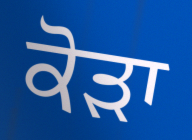
ਕੋੜਾ